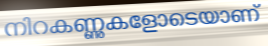
നിറകണ്ണുകളോടെയാണ്